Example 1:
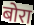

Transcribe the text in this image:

बोरा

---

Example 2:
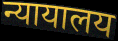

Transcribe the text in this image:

न्यायालय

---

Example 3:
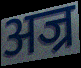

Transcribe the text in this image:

अज्र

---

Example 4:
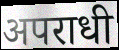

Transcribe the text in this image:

अपराधी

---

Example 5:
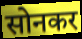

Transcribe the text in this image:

सोनकर